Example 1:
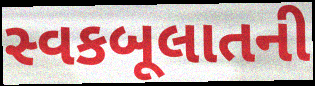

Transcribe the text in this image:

સ્વકબૂલાતની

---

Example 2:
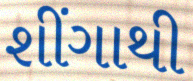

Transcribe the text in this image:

શીંગાથી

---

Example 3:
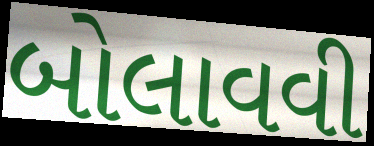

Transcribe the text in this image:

બોલાવવી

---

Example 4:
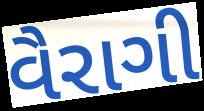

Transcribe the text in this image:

વૈરાગી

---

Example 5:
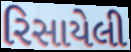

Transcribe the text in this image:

રિસાયેલી